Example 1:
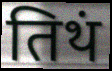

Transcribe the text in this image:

तिथं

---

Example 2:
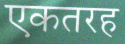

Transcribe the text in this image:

एकतरह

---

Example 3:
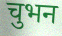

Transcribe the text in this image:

चुभन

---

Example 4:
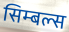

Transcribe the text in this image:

सिम्बल्स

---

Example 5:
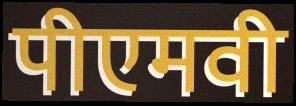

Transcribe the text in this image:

पीएमवी